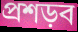
প্রশড়ব